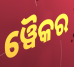
ୱୈକର